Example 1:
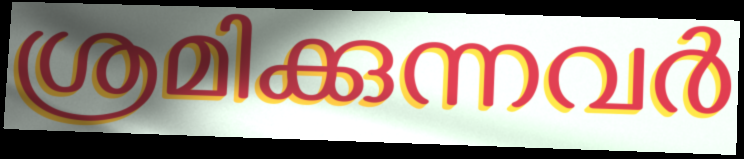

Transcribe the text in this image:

ശ്രമിക്കുന്നവർ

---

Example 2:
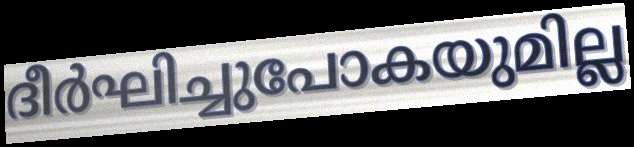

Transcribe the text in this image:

ദീർഘിച്ചുപോകയുമില്ല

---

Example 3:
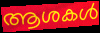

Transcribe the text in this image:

ആശകൾ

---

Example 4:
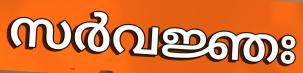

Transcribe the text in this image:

സർവജ്ഞഃ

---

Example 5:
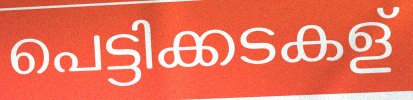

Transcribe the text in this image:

പെട്ടിക്കടകള്